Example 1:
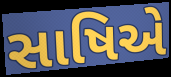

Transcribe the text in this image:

સાષિએ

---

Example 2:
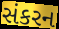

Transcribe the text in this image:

સંકરન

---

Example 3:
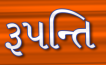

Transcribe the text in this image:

રૂપન્તિ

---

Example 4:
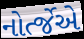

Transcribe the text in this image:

નોર્ત્જેએ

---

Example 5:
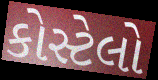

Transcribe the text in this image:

કોસ્ટેલો